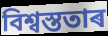
বিশ্বস্ততাৰ